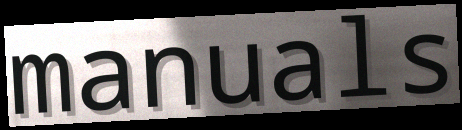
manuals